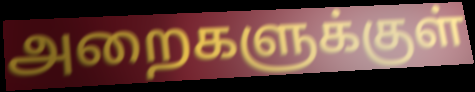
அறைகளுக்குள்